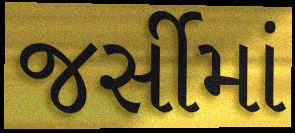
જર્સીમાં